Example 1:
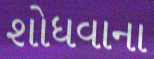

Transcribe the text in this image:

શોધવાના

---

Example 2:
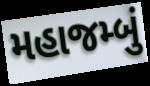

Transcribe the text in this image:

મહાજમ્બું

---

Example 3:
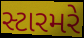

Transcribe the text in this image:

સ્ટારમરે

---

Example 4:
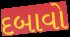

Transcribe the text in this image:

દબાવો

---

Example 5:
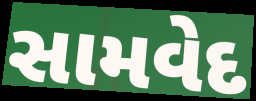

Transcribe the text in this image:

સામવેદ